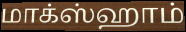
மாக்ஸ்ஹாம்